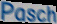
Pasch